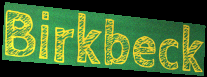
Birkbeck